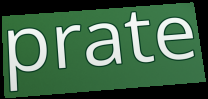
prate